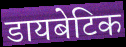
डायबेटिक